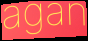
agan